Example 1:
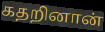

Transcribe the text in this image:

கதறினான்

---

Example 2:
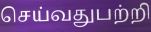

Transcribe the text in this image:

செய்வதுபற்றி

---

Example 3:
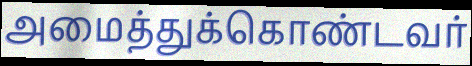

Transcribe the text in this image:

அமைத்துக்கொண்டவர்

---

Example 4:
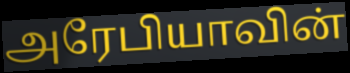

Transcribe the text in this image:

அரேபியாவின்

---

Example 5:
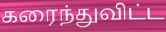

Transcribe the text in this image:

கரைந்துவிட்ட